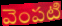
వెంపటి